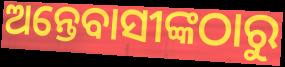
ଅନ୍ତେବାସୀଙ୍କଠାରୁ